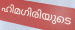
ഹിമഗിരിയുടെ